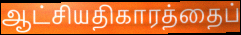
ஆட்சியதிகாரத்தைப்